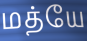
மத்யே